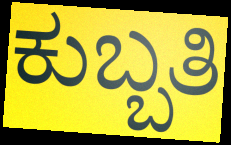
ಕುಬ್ಬತಿ